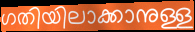
ഗതിയിലാക്കാനുള്ള